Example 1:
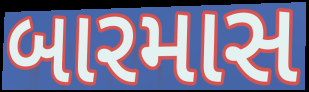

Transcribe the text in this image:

બારમાસ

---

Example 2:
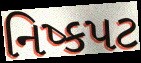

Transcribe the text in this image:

નિષ્કપટ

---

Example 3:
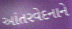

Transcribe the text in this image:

આંતરવેદનાને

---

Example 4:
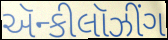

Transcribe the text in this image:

ઍન્કીલૉઝીંગ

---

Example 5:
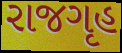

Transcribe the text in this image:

રાજગૃહ